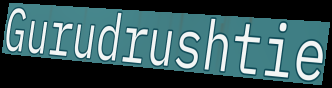
Gurudrushtie